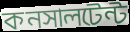
কনসালটেন্ট